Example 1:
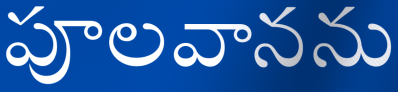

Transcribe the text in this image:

పూలవానను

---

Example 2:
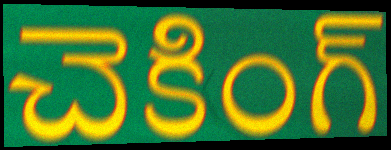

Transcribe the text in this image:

చెకింగ్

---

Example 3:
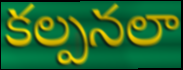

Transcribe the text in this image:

కల్పనలా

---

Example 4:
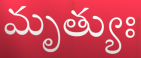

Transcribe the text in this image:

మృత్యుః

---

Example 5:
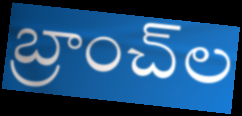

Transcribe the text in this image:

బ్రాంచ్‌ల